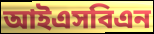
আইএসবিএন